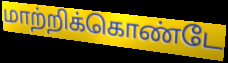
மாற்றிக்கொண்டே